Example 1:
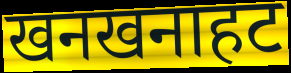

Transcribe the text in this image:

खनखनाहट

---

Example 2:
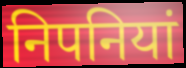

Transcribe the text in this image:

निपनियां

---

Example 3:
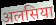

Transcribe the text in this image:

अलसिया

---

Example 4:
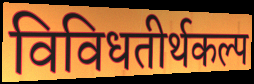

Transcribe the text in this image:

विविधतीर्थकल्प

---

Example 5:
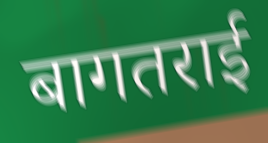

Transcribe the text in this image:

बागतराई